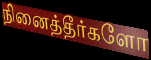
நினைத்தீர்களோ